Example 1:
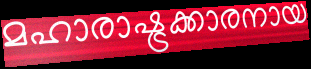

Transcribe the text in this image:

മഹാരാഷ്ട്രക്കാരനായ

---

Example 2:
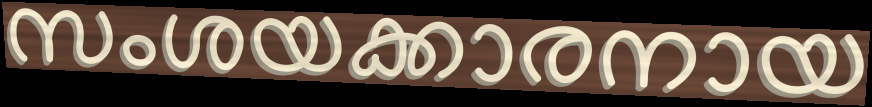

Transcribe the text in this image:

സംശയക്കാരനായ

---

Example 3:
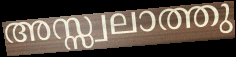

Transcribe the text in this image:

അസ്സ്വലാത്തു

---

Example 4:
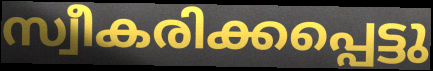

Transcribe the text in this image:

സ്വീകരിക്കപ്പെട്ടു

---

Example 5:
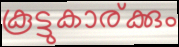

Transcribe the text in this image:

കൂട്ടുകാര്ക്കും